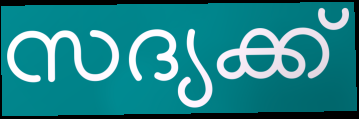
സദ്യക്ക്